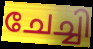
ചേച്ചി